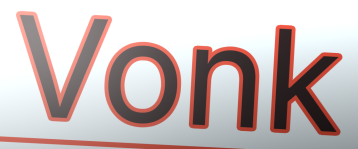
Vonk